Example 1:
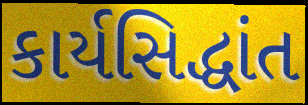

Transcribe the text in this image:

કાર્યસિદ્ધાંત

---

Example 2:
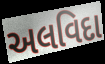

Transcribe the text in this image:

અલવિદા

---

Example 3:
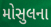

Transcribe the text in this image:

મોસુલના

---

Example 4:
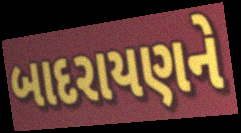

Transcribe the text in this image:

બાદરાયણને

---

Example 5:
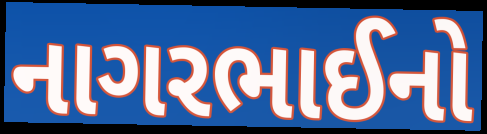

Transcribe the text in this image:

નાગરભાઈનો